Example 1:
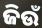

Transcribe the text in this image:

ଜିଉଁ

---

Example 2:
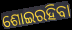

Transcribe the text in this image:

ଶୋଇରହିବା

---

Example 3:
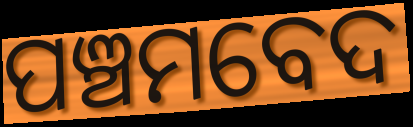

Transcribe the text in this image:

ପଞ୍ଚମବେଦ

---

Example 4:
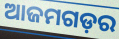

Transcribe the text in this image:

ଆଜମଗଡ଼ର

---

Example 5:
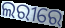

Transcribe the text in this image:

ଲରୀରେ